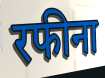
रफीना